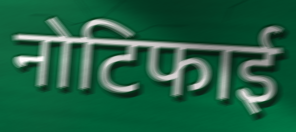
नोटिफाई